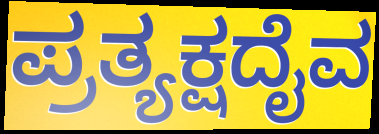
ಪ್ರತ್ಯಕ್ಷದೈವ